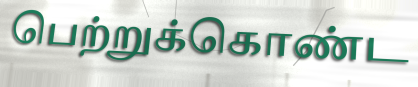
பெற்றுக்கொண்ட